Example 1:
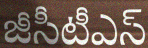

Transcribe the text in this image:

జీసీటీఎస్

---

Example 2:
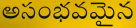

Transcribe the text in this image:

అసంభవమైన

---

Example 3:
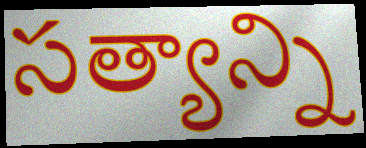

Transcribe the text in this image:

సత్యాన్ని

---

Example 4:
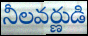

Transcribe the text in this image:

నీలవర్ణుడి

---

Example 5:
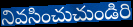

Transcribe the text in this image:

నివసించుచుండిరి